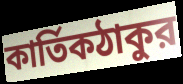
কার্তিকঠাকুর